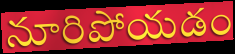
నూరిపోయడం